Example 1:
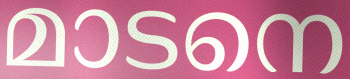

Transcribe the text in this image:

മാടനെ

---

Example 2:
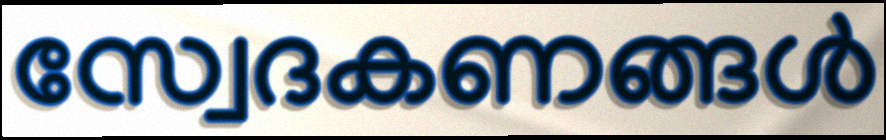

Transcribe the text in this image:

സ്വേദകണങ്ങൾ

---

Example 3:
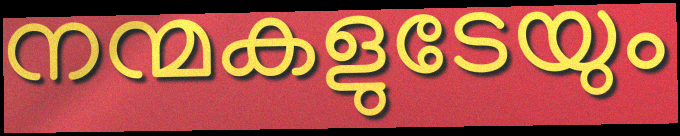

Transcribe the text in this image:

നന്മകളുടേയും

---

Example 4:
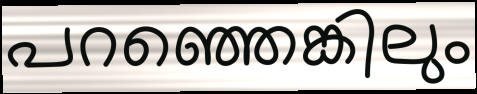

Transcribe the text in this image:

പറഞ്ഞെങ്കിലും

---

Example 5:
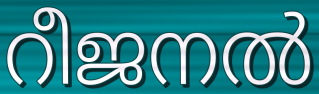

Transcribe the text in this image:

റീജനൽ